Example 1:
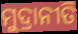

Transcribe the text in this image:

ମୁଦ୍ରାନୀତି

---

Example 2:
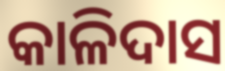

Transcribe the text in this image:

କାଳିଦାସ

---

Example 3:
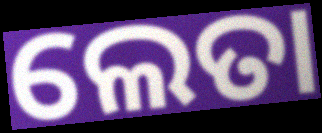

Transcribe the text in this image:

ଲେତା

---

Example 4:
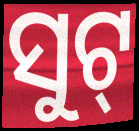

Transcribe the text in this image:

ସୁଟ୍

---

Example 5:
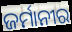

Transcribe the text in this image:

ଜର୍ମାନୀର